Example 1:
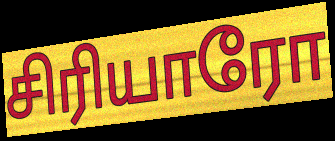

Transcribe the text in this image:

சிரியாரோ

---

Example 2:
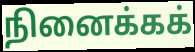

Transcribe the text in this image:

நினைக்கக்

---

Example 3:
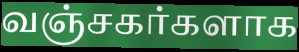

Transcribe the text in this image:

வஞ்சகர்களாக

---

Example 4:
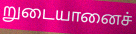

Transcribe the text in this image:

றுடையானைச்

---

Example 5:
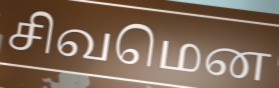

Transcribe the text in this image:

சிவமென